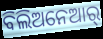
ବିଲିଅନେଆର୍